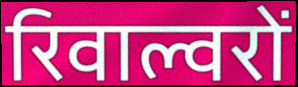
रिवाल्वरों